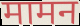
मामन